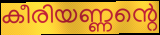
കീരിയണ്ണന്റെ